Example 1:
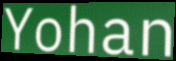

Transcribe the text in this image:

Yohan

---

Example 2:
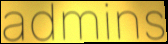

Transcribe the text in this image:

admins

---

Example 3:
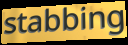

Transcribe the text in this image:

stabbing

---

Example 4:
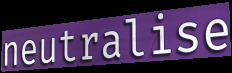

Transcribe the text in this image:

neutralise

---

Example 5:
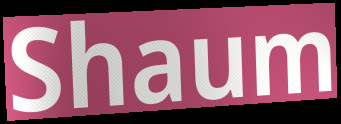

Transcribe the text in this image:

Shaum